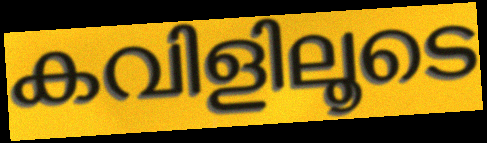
കവിളിലൂടെ